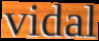
vidal